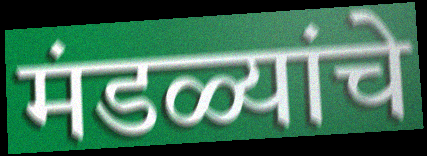
मंडळ्यांचे